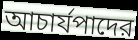
আচার্যপাদের